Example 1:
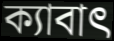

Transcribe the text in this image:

ক্যাবাৎ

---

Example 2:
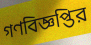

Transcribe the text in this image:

গণবিজ্ঞপ্তির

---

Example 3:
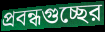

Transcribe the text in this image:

প্রবন্ধগুচ্ছের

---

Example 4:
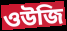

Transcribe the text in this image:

ওউজি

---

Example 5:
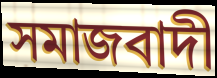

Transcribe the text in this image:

সমাজবাদী